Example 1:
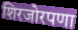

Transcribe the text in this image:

शिरजोरपणा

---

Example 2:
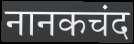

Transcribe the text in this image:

नानकचंद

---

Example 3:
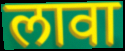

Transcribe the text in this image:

लावा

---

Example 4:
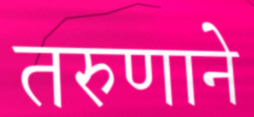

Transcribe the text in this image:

तरुणाने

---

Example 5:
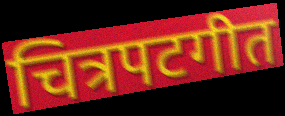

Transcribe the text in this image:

चित्रपटगीत